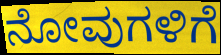
ನೋವುಗಳಿಗೆ